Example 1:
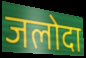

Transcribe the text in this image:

जलोदा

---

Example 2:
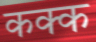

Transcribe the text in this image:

कक्क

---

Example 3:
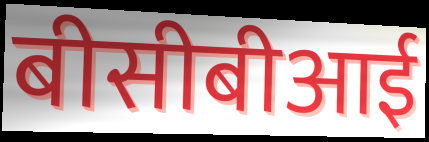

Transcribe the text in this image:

बीसीबीआई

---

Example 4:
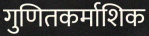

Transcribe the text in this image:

गुणितकर्माशिक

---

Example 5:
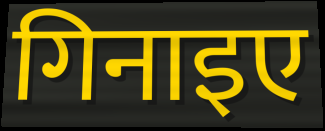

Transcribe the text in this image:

गिनाइए